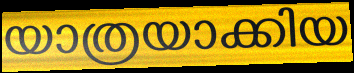
യാത്രയാക്കിയ